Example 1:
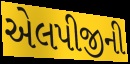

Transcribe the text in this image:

એલપીજીની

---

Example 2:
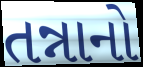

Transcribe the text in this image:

તન્નાનો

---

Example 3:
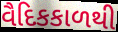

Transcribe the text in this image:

વૈદિકકાળથી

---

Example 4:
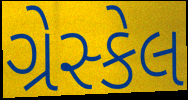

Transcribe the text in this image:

ગ્રેસ્કેલ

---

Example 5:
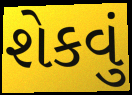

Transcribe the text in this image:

શેકવું